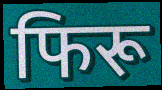
फिरू